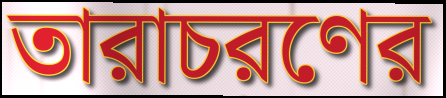
তারাচরণের